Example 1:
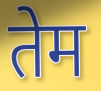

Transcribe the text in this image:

तेम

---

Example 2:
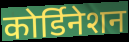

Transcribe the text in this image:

कोर्डिनेशन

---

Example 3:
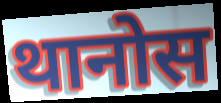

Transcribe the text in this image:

थानोस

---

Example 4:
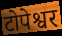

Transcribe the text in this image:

टोपेश्वर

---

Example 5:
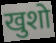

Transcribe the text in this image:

खुशो